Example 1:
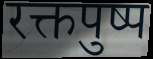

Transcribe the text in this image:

रक्तपुष्प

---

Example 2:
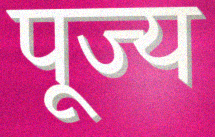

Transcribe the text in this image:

पूज्य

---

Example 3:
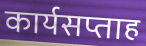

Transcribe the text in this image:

कार्यसप्ताह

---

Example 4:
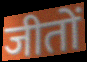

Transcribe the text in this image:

जीतों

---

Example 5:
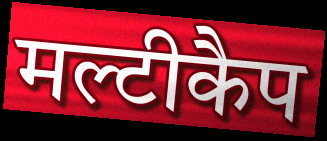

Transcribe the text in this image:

मल्‍टीकैप